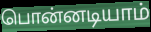
பொன்னடியாம்